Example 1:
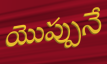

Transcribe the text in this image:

యొప్పునే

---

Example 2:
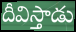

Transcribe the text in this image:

దీవిస్తాడు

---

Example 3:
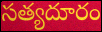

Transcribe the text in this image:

సత్యదూరం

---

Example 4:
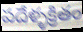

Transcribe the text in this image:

పదేళ్ళక్రితం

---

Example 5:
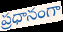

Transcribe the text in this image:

ప్రధానంగా